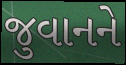
જુવાનને